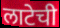
लाटेची